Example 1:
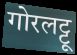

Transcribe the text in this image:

गोरलट्टू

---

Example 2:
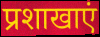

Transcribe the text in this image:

प्रशाखाएं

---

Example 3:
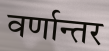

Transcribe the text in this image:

वर्णान्तर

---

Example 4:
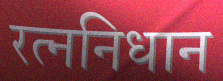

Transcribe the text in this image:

रत्ननिधान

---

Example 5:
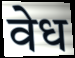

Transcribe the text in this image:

वेध